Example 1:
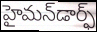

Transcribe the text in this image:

హైమన్‌డార్ఫ్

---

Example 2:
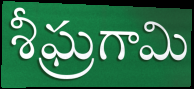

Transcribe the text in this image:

శీఘ్రగామి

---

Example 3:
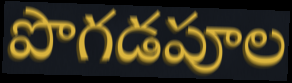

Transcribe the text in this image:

పొగడపూల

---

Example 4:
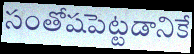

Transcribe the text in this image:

సంతోషపెట్టడానికే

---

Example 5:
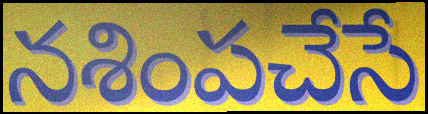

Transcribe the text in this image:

నశింపచేసే